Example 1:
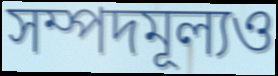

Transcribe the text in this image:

সম্পদমূল্যও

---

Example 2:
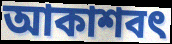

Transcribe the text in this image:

আকাশবৎ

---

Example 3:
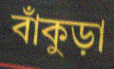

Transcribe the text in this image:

বাঁকুড়া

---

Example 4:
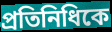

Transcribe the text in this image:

প্রতিনিধিকে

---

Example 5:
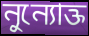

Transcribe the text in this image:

নুন্যোক্ত